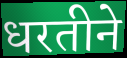
धरतीने